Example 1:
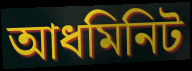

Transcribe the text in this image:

আধমিনিট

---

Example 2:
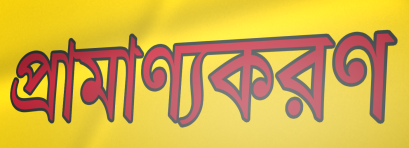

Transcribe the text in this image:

প্রামাণ্যকরণ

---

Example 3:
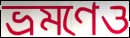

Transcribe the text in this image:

ভ্রমণেও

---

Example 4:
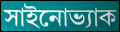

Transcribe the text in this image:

সাইনোভ্যাক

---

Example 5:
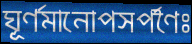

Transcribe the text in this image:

ঘূর্ণমানোপসর্পণৈঃ